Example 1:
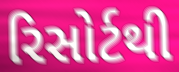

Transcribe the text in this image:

રિસોર્ટથી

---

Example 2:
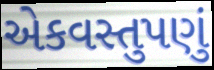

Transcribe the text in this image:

એકવસ્તુપણું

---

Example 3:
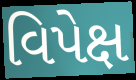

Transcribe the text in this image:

વિપેક્ષ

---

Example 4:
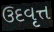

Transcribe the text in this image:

ઉદવૃત્ત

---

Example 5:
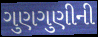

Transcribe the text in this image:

ગુણગુણીની